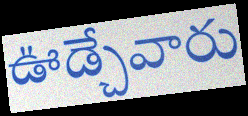
ఊడ్చేవారు